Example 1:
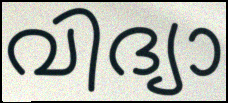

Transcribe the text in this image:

വിദ്യാ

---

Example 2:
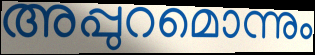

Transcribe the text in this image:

അപ്പുറമൊന്നും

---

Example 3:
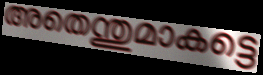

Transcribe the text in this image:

അതെന്തുമാകട്ടെ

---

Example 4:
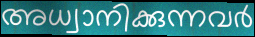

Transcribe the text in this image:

അധ്വാനിക്കുന്നവർ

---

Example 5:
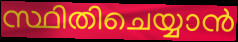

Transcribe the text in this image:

സ്ഥിതിചെയ്യാൻ